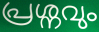
പ്രശ്നവും